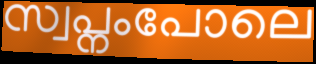
സ്വപ്നംപോലെ